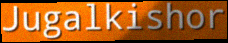
Jugalkishor